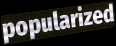
popularized